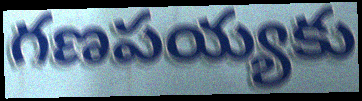
గణపయ్యకు